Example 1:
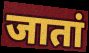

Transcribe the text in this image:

जातां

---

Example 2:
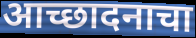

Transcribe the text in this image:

आच्छादनाचा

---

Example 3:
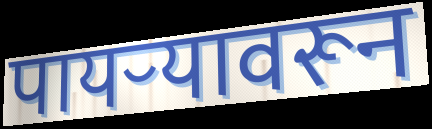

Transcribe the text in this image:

पायऱ्यावरून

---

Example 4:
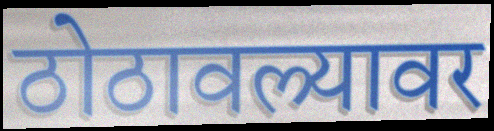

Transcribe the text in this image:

ठोठावल्यावर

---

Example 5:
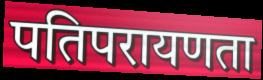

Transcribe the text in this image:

पतिपरायणता